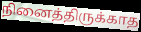
நினைத்திருக்காத